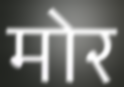
मोर